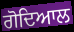
ਗੋਦਿਆਲ